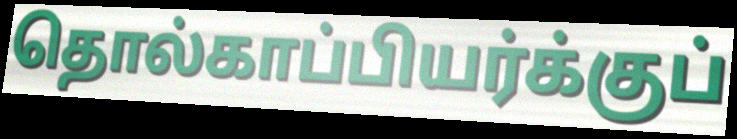
தொல்காப்பியர்க்குப்